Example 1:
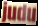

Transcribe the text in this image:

judu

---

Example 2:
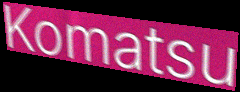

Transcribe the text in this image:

Komatsu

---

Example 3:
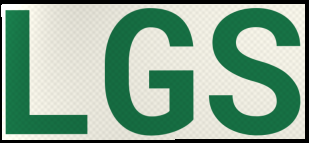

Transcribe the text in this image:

LGS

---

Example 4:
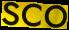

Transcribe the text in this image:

sco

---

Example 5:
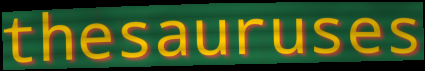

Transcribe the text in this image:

thesauruses